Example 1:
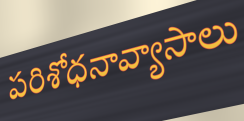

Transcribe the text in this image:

పరిశోధనావ్యాసాలు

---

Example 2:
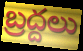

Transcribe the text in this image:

బ్రద్దలు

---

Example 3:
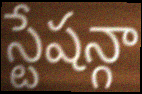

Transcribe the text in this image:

స్టేషన్గా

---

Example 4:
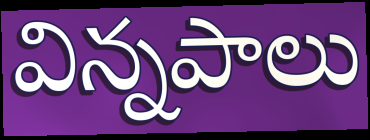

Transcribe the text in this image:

విన్నపాలు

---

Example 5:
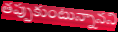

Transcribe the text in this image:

తప్పుకుంటున్నానని